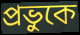
প্রভুকে